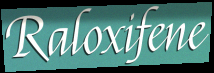
Raloxifene